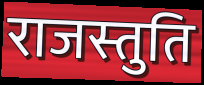
राजस्तुति